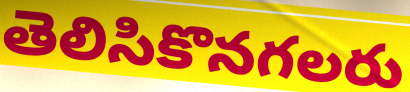
తెలిసికొనగలరు